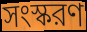
সংস্করণ